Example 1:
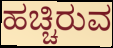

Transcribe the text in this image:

ಹಚ್ಚಿರುವ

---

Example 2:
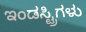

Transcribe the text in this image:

ಇಂಡಸ್ಟ್ರಿಗಳು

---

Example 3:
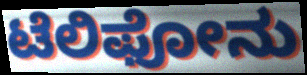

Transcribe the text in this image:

ಟೆಲಿಫೋನು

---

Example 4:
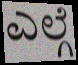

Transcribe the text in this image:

ಎಲ್ಗೆ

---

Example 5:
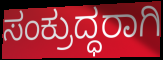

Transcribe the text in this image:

ಸಂಕ್ರುದ್ಧರಾಗಿ